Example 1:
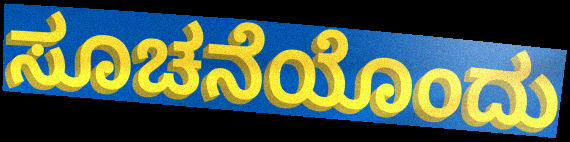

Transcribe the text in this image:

ಸೂಚನೆಯೊಂದು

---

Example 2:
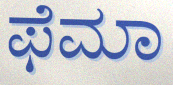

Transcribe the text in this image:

ಫೆಮಾ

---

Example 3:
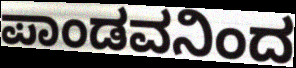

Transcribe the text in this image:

ಪಾಂಡವನಿಂದ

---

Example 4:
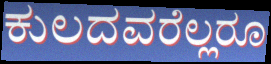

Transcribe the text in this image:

ಕುಲದವರೆಲ್ಲರೂ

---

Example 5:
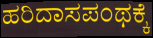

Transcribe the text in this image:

ಹರಿದಾಸಪಂಥಕ್ಕೆ